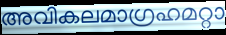
അവികലമാഗ്രഹമറ്റാ